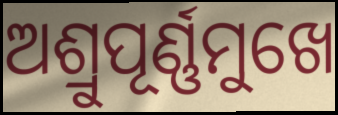
ଅଶ୍ରୁପୂର୍ଣ୍ଣମୁଖେ